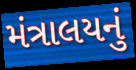
મંત્રાલયનું